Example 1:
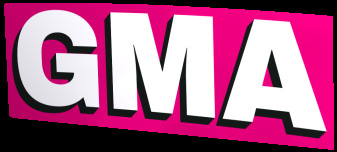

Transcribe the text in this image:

GMA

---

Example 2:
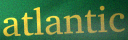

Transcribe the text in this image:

atlantic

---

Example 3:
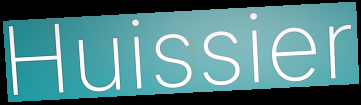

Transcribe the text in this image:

Huissier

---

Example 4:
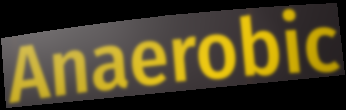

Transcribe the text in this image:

Anaerobic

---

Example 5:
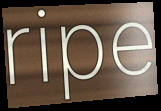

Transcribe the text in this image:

ripe